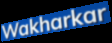
Wakharkar